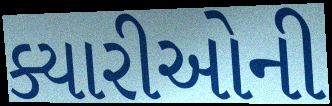
ક્યારીઓની